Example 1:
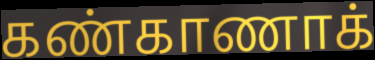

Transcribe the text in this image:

கண்காணாக்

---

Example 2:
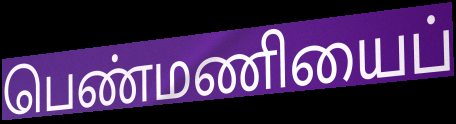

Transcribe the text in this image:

பெண்மணியைப்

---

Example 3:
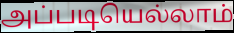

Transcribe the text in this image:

அப்படியெல்லாம்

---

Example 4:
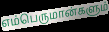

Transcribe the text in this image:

எம்பெருமான்களும்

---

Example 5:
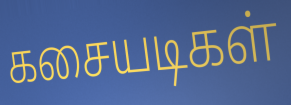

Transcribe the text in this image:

கசையடிகள்